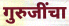
गुरुजींचा